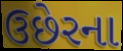
ઉછેરના